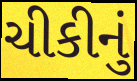
ચીકીનું